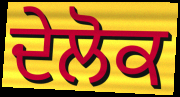
ਦੇਲੋਕ